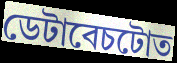
ডেটাবেচটোত